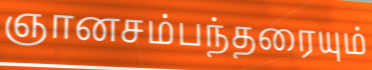
ஞானசம்பந்தரையும்